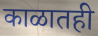
काळातही